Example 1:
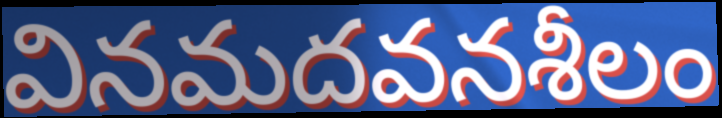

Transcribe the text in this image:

వినమదవనశీలం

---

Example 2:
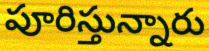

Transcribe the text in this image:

పూరిస్తున్నారు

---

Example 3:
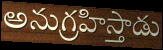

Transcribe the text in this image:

అనుగ్రహిస్తాడు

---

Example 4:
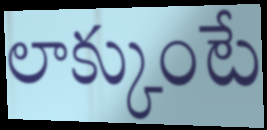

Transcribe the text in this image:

లాక్కుంటే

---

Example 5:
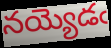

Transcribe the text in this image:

నయ్యెడఁ